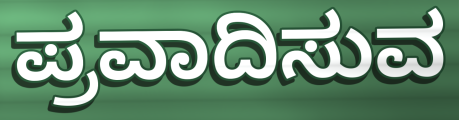
ಪ್ರವಾದಿಸುವ